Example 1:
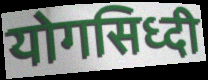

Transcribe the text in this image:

योगसिध्दी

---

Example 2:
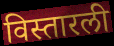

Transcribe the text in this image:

विस्तारली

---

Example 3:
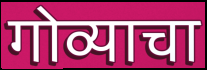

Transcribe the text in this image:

गोव्याचा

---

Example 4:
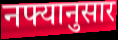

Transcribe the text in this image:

नफ्यानुसार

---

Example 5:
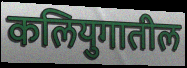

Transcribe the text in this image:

कलियुगातील